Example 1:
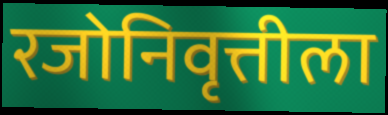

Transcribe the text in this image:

रजोनिवृत्तीला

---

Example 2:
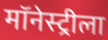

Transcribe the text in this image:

मॉनेस्ट्रीला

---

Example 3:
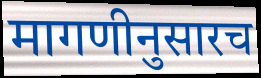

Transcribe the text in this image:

मागणीनुसारच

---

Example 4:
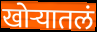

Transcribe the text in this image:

खोऱ्यातलं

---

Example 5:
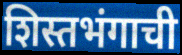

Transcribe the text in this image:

शिस्तभंगाची